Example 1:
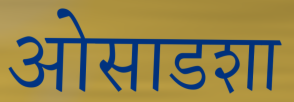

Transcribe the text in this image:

ओसाडशा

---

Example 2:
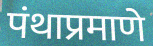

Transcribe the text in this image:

पंथाप्रमाणे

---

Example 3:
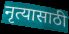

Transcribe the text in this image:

नृत्यासाठी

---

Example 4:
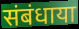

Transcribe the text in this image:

संबंधाया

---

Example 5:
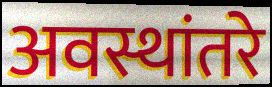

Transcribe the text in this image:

अवस्थांतरे